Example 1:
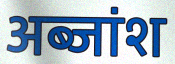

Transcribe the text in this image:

अब्जांश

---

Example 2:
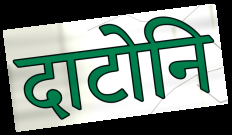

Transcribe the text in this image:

दाटोनि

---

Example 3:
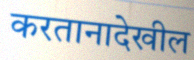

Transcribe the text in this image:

करतानादेखील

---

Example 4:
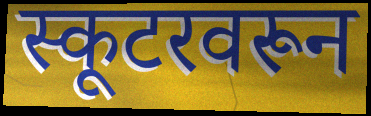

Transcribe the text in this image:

स्कूटरवरून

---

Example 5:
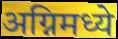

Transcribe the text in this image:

अग्निमध्ये